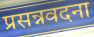
प्रसन्नवदना